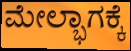
ಮೇಲ್ಭಾಗಕ್ಕೆ